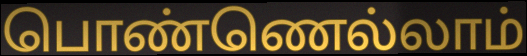
பொண்ணெல்லாம்